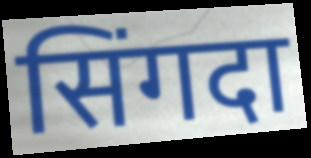
सिंगदा